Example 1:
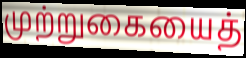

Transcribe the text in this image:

முற்றுகையைத்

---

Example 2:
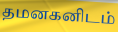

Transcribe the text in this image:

தமனகனிடம்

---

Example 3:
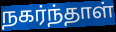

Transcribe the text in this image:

நகர்ந்தாள்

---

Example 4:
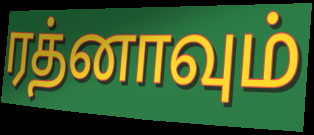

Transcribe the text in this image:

ரத்னாவும்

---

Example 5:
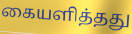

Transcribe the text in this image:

கையளித்தது